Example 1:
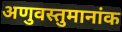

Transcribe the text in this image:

अणुवस्तुमानांक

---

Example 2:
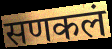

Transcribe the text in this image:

सणकलं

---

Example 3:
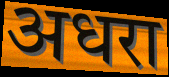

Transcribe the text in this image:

अधरा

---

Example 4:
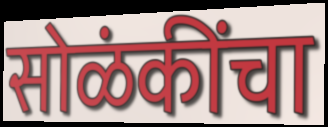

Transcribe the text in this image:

सोळंकींचा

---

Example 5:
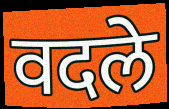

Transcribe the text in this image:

वदले